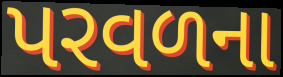
પરવળના